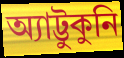
অ্যাট্টুকুনি